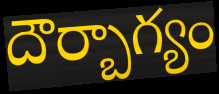
దౌర్బాగ్యం